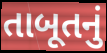
તાબૂતનું